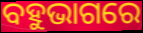
ବହୁଭାଗରେ